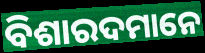
ବିଶାରଦମାନେ